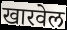
खारवेल